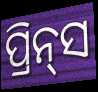
ପ୍ରିନ୍‍ସ